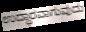
ಉದ್ಧಾರವಾಗುವುದು